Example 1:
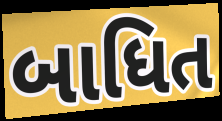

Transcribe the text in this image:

બાધિત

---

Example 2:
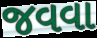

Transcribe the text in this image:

જવવા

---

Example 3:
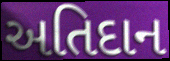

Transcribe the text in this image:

અતિદાન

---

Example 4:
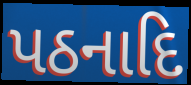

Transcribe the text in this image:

પઠનાદિ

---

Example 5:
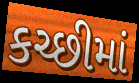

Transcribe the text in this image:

કચ્છીમાં